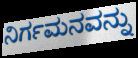
ನಿರ್ಗಮನವನ್ನು